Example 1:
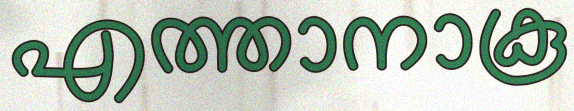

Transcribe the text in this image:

എത്താനാകൂ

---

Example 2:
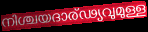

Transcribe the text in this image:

നിശ്ചയദാര്ഢ്യവുമുള്ള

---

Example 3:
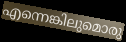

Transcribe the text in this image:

എന്നെങ്കിലുമൊരു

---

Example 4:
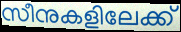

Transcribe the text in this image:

സീനുകളിലേക്ക്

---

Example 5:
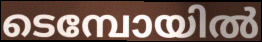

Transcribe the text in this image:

ടെമ്പോയിൽ